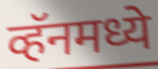
व्हॅनमध्ये